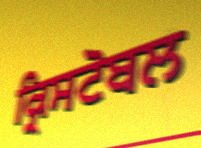
ਕ੍ਰਿਸਟੋਬਲ